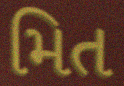
મિત